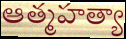
ఆత్మహత్యా